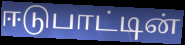
ஈடுபாட்டின்